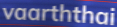
vaarththai